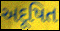
અદૂષિત